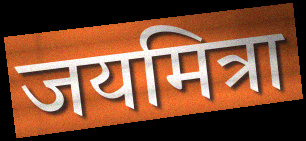
जयमित्रा